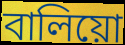
বালিয়ো